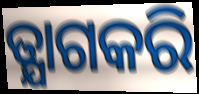
ତ୍ଯାଗକରି